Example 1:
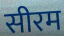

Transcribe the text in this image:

सीरम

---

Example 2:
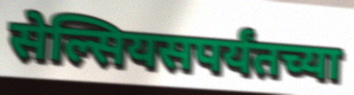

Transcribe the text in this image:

सेल्सियसपर्यंतच्या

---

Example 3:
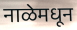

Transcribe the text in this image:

नाळेमधून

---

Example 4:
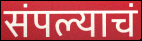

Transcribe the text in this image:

संपल्याचं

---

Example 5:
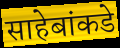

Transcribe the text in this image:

साहेबांकडे